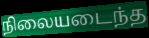
நிலையடைந்த